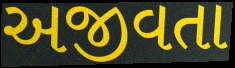
અજીવતા